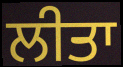
ਲੀਤਾ